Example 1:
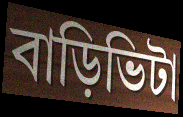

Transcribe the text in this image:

বাড়িভিটা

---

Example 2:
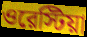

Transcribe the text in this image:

ওরেস্টিয়া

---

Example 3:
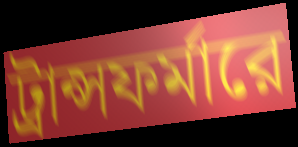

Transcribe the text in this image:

ট্রান্সফর্মারে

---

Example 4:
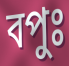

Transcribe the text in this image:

বপুঃ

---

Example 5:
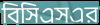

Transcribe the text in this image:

বিসিএসএর